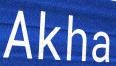
Akha